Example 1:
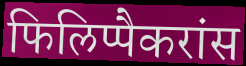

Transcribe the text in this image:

फिलिप्पैकरांस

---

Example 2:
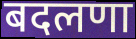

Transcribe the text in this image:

बदलणा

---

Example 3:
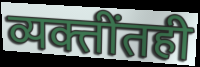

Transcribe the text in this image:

व्यक्तींतही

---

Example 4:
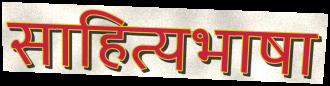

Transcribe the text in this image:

साहित्यभाषा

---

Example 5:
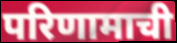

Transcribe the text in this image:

परिणामाची